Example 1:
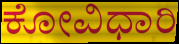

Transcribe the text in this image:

ಕೋವಿಧಾರಿ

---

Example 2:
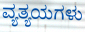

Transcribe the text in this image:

ವ್ಯತ್ಯಯಗಳು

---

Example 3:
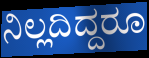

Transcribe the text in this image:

ನಿಲ್ಲದಿದ್ದರೂ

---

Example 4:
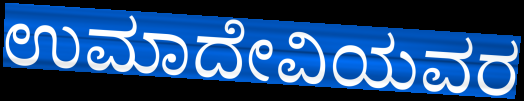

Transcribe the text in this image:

ಉಮಾದೇವಿಯವರ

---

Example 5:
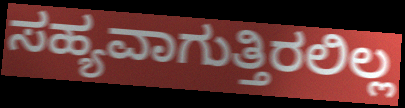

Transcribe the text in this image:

ಸಹ್ಯವಾಗುತ್ತಿರಲಿಲ್ಲ